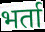
भर्ता